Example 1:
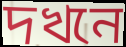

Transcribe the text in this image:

দখনে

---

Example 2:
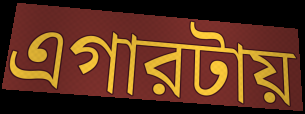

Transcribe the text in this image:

এগারটায়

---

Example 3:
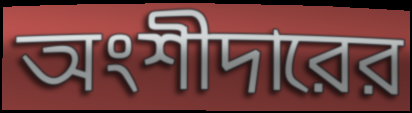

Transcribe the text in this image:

অংশীদারের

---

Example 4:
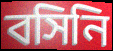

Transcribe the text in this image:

বসিনি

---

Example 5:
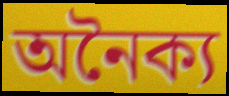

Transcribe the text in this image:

অনৈক্য